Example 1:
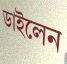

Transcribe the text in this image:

ডাইলেন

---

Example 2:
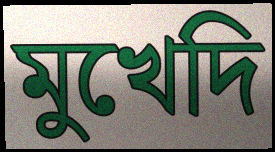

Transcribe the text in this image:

মুখেদি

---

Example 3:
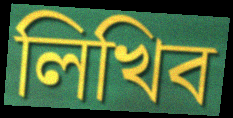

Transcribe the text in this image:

লিখিব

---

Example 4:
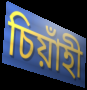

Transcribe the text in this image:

চিয়াঁহী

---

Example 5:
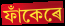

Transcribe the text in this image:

ফাঁকেৰে